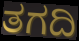
ತಗದಿ